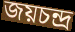
জয়চন্দ্র